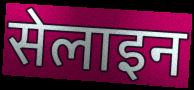
सेलाइन